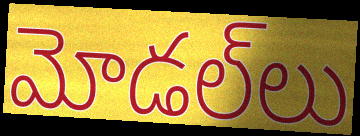
మోడల్‌లు